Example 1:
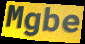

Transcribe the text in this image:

Mgbe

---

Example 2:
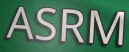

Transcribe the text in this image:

ASRM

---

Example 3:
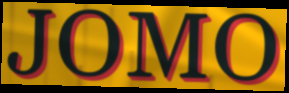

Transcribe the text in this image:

JOMO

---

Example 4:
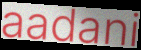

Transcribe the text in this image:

aadani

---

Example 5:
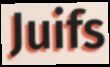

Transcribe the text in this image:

Juifs